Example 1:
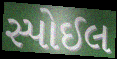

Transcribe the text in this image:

સ્પોઈલ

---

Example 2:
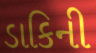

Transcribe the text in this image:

ડાકિની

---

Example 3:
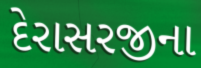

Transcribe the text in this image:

દેરાસરજીના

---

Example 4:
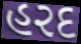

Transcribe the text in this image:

હરદ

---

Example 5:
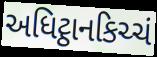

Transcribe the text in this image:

અધિટ્ઠાનકિચ્ચં